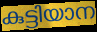
കുട്ടിയാന